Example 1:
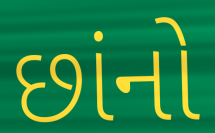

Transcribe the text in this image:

છાંનો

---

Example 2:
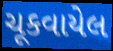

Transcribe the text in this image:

ચૂકવાયેલ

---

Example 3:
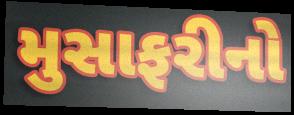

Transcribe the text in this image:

મુસાફરીનો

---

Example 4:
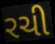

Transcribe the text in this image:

રચી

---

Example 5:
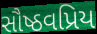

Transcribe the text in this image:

સૌષ્ઠવપ્રિય